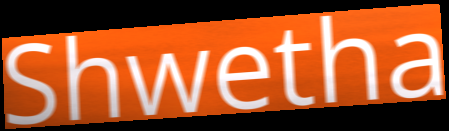
Shwetha